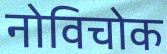
नोविचोक